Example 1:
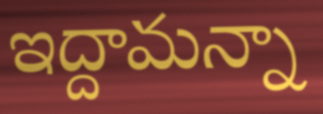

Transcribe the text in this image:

ఇద్దామన్నా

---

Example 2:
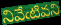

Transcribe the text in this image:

నివేఁటివని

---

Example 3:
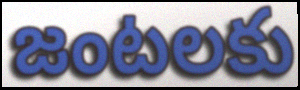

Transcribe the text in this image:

జంటలకు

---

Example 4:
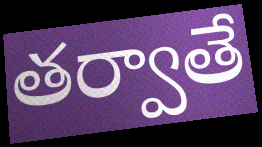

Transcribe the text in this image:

తర్వాతే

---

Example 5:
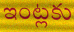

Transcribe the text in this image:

ఇంట్లకు